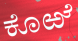
ಕೊಱೆ